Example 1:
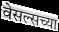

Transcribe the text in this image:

वेसल्सच्या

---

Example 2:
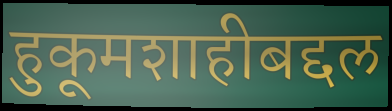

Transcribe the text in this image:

हुकूमशाहीबद्दल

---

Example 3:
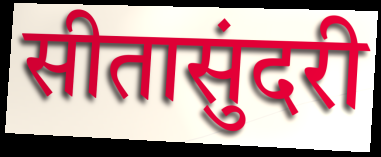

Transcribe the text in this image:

सीतासुंदरी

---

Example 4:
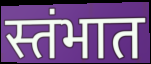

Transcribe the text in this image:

स्तंभात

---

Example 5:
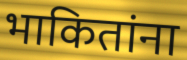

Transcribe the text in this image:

भाकितांना